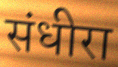
संधीरा